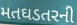
મતઘડતરની